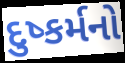
દુષ્કર્મનો